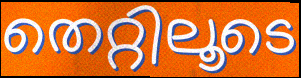
തെറ്റിലൂടെ